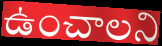
ఉంచాలని